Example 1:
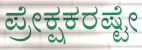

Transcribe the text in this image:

ಪ್ರೇಕ್ಷಕರಷ್ಟೇ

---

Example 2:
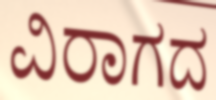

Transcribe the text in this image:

ವಿರಾಗದ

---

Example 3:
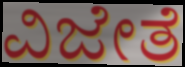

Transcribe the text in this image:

ವಿಜೇತೆ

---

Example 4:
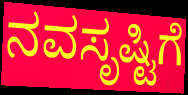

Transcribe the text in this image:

ನವಸೃಷ್ಟಿಗೆ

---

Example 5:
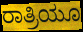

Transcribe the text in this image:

ರಾತ್ರಿಯೂ